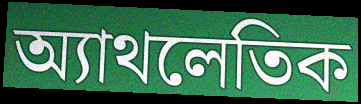
অ্যাথলেতিক